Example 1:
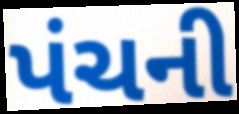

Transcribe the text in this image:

પંચની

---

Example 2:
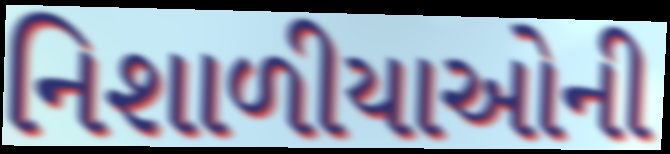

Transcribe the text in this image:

નિશાળીયાઓની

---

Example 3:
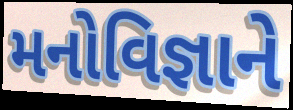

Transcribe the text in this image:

મનોવિજ્ઞાને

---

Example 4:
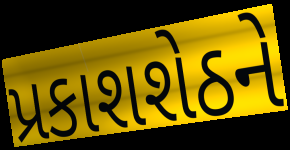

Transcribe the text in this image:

પ્રકાશશેઠને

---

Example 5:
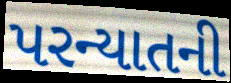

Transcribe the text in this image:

પરન્યાતની